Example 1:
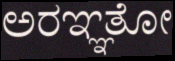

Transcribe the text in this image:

ಅರಞ್ಞತೋ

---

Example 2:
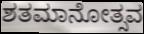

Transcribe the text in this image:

ಶತಮಾನೋತ್ಸವ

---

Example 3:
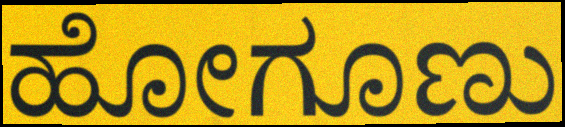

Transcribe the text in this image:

ಹೋಗೂಣು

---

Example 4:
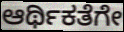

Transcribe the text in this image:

ಆರ್ಥಿಕತೆಗೇ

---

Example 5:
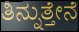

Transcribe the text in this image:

ತಿನ್ನುತ್ತೇನೆ